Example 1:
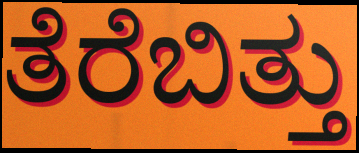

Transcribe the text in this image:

ತೆರೆಬಿತ್ತು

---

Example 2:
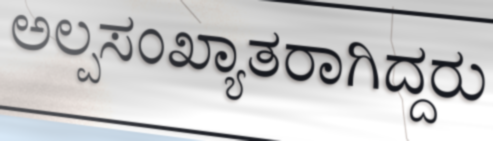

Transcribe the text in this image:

ಅಲ್ಪಸಂಖ್ಯಾತರಾಗಿದ್ದರು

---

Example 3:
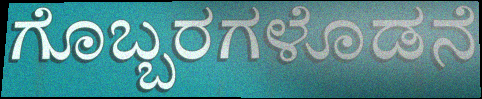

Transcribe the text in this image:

ಗೊಬ್ಬರಗಳೊಡನೆ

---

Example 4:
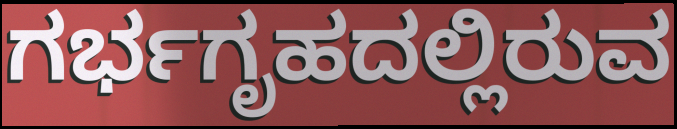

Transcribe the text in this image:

ಗರ್ಭಗೃಹದಲ್ಲಿರುವ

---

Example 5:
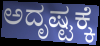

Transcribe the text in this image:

ಅದೃಷ್ಟಕ್ಕೆ